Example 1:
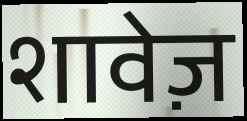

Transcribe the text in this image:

शावेज़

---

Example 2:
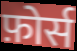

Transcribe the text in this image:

फ़ोर्स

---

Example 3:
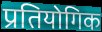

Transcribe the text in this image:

प्रतियोगिक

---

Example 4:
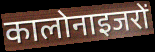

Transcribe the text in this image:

कालोनाइजरों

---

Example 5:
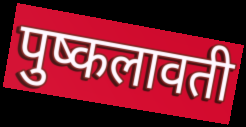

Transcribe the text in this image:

पुष्कलावती